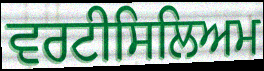
ਵਰਟੀਸਿਲਿਅਮ